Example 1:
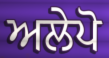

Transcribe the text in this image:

ਅਲੇਪੋ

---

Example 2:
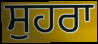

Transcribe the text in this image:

ਸੁਹਰਾ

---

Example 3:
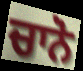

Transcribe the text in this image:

ਚਾਨੋ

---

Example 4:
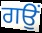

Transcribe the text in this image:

ਗਉਂ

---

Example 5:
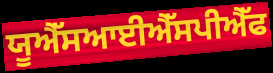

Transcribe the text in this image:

ਯੂਐੱਸਆਈਐੱਸਪੀਐੱਫ